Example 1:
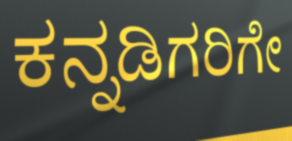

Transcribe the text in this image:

ಕನ್ನಡಿಗರಿಗೇ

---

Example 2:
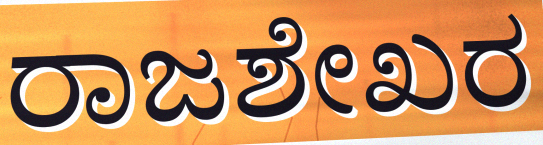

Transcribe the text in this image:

ರಾಜಶೇಖರ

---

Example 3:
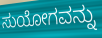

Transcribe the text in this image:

ಸುಯೋಗವನ್ನು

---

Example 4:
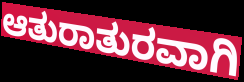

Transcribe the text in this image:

ಆತುರಾತುರವಾಗಿ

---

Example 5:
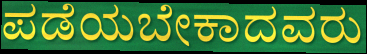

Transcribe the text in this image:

ಪಡೆಯಬೇಕಾದವರು